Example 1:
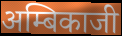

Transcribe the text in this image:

अम्बिकाजी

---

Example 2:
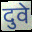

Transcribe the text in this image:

दुवे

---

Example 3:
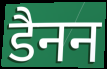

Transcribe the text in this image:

डैनन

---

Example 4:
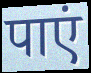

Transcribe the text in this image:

पाएं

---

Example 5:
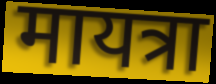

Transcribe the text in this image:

मायत्रा